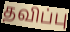
தவிப்பு